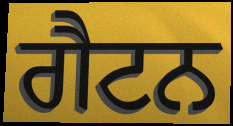
ਗੈਟਨ